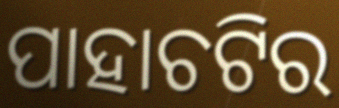
ପାହାଚଟିର